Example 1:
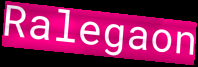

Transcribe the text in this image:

Ralegaon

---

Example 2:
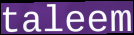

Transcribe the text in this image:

taleem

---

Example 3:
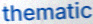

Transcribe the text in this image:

thematic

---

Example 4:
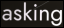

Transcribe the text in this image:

asking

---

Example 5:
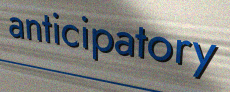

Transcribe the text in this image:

anticipatory